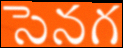
సెనగ